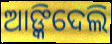
ଆଙ୍କିଦେଲି